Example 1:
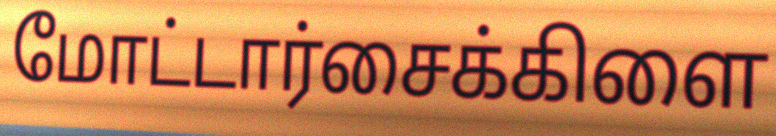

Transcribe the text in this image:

மோட்டார்சைக்கிளை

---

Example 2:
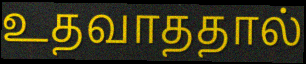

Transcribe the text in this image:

உதவாததால்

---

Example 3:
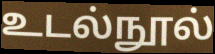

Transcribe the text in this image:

உடல்நூல்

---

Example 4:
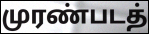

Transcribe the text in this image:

முரண்படத்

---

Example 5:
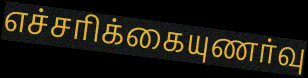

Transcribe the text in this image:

எச்சரிக்கையுணர்வு